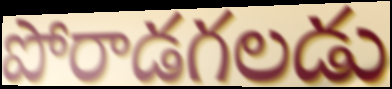
పోరాడగలడు